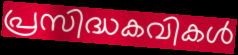
പ്രസിദ്ധകവികൾ